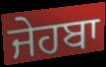
ਜੇਹਬਾ